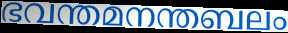
ഭവന്തമനന്തബലം